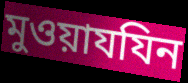
মুওয়াযযিন